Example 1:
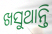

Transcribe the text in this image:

ଖସୁଥାନ୍ତି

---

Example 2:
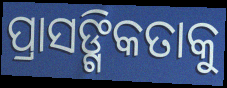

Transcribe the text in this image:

ପ୍ରାସଙ୍ଗିକତାକୁ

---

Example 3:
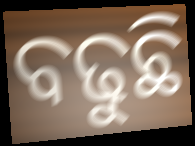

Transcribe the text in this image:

ବଢୁଛି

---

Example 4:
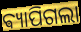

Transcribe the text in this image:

ଵ୍ୟାପିଗଲା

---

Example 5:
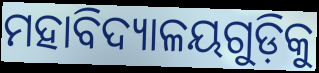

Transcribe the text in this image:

ମହାବିଦ୍ୟାଳୟଗୁଡ଼ିକୁ